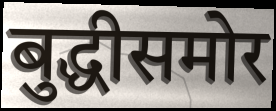
बुद्धीसमोर